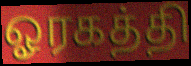
ஓரகத்தி